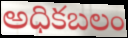
అధికబలం